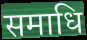
समाधि